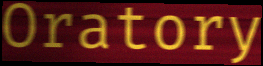
Oratory